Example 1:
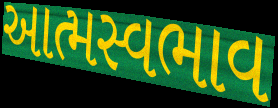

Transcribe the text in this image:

આત્મસ્વભાવ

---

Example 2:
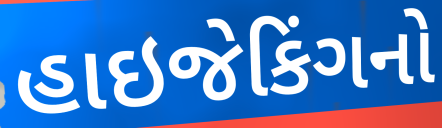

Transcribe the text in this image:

હાઇજેકિંગનો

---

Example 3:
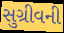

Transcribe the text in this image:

સુગ્રીવની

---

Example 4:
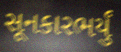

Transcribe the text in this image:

સૂનકારભર્યું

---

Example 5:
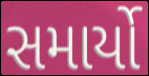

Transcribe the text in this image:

સમાર્યો